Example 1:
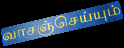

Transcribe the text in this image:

வாசஞ்செய்யும்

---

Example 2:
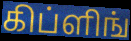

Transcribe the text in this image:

கிப்ளிங்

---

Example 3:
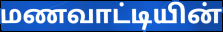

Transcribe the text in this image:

மணவாட்டியின்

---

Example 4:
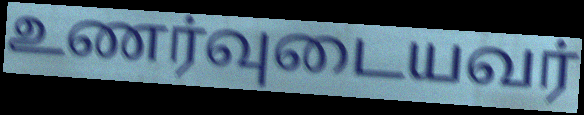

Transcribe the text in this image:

உணர்வுடையவர்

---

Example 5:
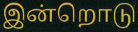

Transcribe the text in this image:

இன்றொடு